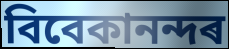
বিবেকানন্দৰ